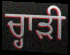
ਚ੍ਹਾੜੀ